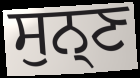
ਸੁਨ੍ਣ